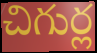
చిగుర్ల